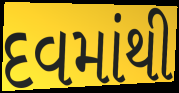
દવમાંથી